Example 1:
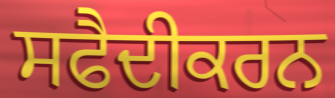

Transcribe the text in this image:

ਸਫੈਦੀਕਰਨ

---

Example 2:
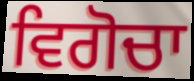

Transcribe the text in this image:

ਵਿਗੋਚਾ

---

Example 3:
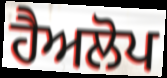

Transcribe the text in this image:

ਹੈਅਲੋਪ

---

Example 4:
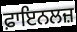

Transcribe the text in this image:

ਫ਼ਾਇਨਲਜ਼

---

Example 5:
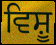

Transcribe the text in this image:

ਵਿਸ਼ੂ